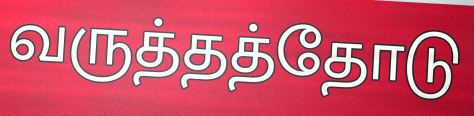
வருத்தத்தோடு